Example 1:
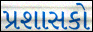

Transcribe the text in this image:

પ્રશાસકો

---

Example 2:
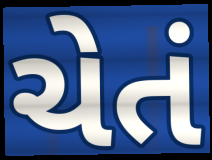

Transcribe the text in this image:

ચેતં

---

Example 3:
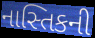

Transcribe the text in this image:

નાસ્તિકની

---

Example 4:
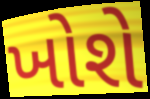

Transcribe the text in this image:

ખોશે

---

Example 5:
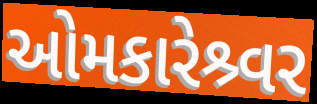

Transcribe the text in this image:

ઓમકારેશ્ર્વર